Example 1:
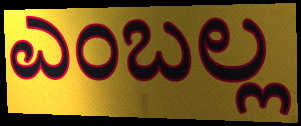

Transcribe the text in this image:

ಎಂಬಲ್ಲ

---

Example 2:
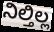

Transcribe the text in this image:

ನಿಲ್ತಿಲ್ಲ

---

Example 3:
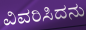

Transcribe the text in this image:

ವಿವರಿಸಿದನು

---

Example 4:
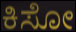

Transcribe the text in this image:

ಕಿಸೋ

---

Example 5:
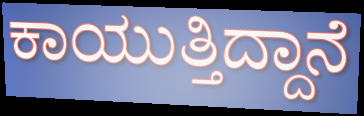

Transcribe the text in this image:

ಕಾಯುತ್ತಿದ್ದಾನೆ